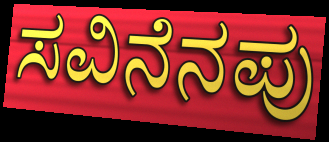
ಸವಿನೆನಪು